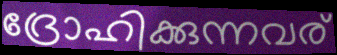
ദ്രോഹിക്കുന്നവര്